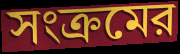
সংক্রমের